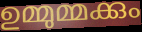
ഉമ്മുമ്മക്കും